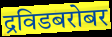
द्रविडबरोबर